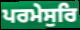
ਪਰਮੇਸੁਰਿ